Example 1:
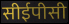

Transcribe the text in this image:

सीईपीसी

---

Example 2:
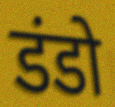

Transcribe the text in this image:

डंडो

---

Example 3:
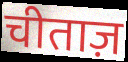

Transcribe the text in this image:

चीताज़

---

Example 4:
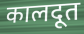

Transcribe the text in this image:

कालदूत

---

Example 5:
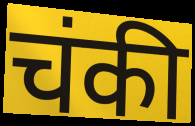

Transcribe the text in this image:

चंकी